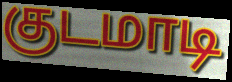
குடமாடி